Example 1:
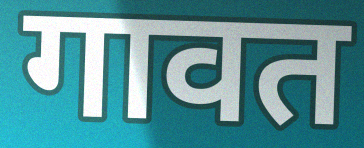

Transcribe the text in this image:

गावत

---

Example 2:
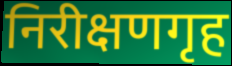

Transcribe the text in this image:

निरीक्षणगृह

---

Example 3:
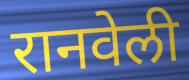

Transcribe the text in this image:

रानवेली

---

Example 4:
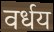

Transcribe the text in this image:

वर्धय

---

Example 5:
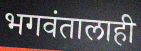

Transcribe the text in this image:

भगवंतालाही